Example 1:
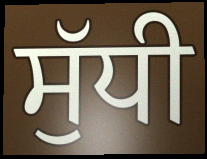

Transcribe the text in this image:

ਸੁੱਧੀ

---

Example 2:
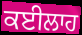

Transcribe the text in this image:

ਕਈਲਾਹ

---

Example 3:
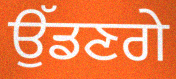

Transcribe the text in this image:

ਉੱਡਣਗੇ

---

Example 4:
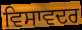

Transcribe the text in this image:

ਵਿਸਾਵਦਰ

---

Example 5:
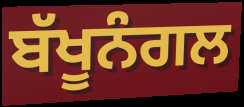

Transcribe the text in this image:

ਬੱਖੂਨੰਗਲ